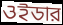
ওইডার